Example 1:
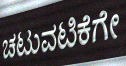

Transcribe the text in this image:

ಚಟುವಟಿಕೆಗೇ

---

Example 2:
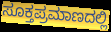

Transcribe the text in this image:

ಸೂಕ್ತಪ್ರಮಾಣದಲ್ಲಿ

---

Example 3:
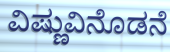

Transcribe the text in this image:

ವಿಷ್ಣುವಿನೊಡನೆ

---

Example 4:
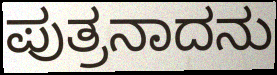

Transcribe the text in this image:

ಪುತ್ರನಾದನು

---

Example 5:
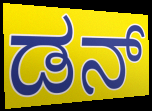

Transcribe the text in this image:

ಡನ್